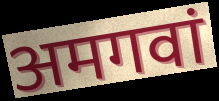
अमगवां